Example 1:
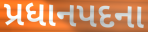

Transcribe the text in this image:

પ્રધાનપદના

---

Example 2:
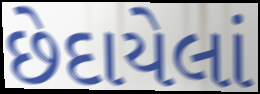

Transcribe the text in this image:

છેદાયેલાં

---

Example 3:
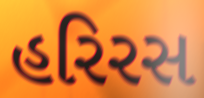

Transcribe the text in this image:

હરિરસ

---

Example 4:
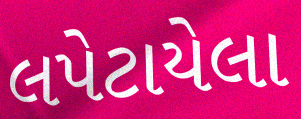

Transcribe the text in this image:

લપેટાયેલા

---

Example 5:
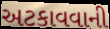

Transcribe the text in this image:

અટકાવવાની